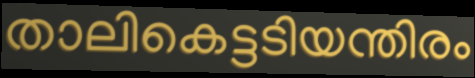
താലികെട്ടടിയന്തിരം